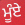
ਮੂੰਏ